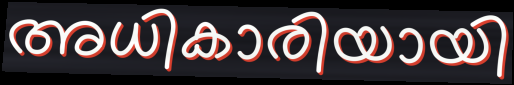
അധികാരിയായി